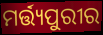
ମର୍ତ୍ତ୍ୟପୁରୀର